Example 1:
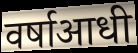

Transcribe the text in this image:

वर्षाआधी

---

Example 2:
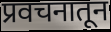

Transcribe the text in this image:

प्रवचनातून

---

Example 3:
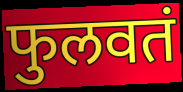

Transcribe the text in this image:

फुलवतं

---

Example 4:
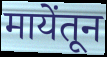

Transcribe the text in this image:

मायेंतून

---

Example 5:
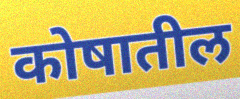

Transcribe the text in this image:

कोषातील